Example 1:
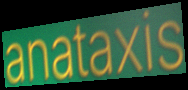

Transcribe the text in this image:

anataxis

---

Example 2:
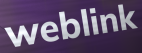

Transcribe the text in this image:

weblink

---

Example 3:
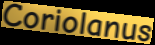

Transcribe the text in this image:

Coriolanus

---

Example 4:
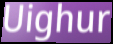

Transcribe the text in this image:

Uighur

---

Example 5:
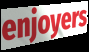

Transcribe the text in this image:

enjoyers